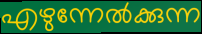
എഴുന്നേൽക്കുന്ന